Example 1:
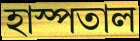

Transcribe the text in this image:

হাস্পতাল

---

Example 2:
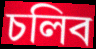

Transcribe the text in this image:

চলিব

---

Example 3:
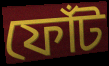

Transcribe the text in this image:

ফোঁট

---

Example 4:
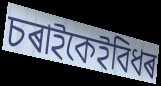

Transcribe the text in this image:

চৰাইকেইবিধৰ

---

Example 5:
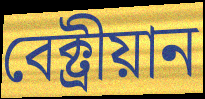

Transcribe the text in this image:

বেক্ট্ৰীয়ান